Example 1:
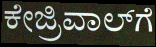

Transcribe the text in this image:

ಕೇಜ್ರಿವಾಲ್‍ಗೆ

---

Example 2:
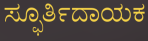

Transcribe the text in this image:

ಸ್ಫೂರ್ತಿದಾಯಕ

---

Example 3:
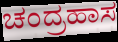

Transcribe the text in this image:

ಚಂದ್ರಹಾಸ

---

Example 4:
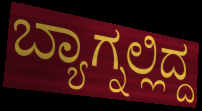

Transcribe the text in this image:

ಬ್ಯಾಗ್ನಲ್ಲಿದ್ದ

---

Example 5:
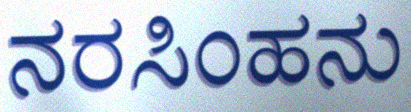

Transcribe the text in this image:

ನರಸಿಂಹನು